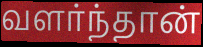
வளர்ந்தான்